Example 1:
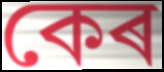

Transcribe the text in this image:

কেৰ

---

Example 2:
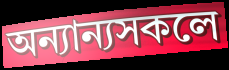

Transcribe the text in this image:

অন্যান্যসকলে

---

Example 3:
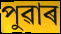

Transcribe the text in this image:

পুৱাৰ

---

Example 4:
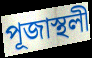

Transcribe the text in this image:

পূজাস্থলী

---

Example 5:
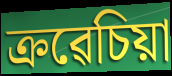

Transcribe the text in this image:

ক্ৰৱেচিয়া